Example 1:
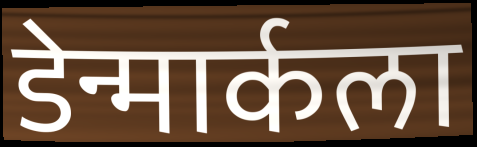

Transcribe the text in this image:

डेन्मार्कला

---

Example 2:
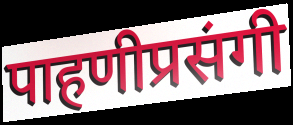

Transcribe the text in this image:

पाहणीप्रसंगी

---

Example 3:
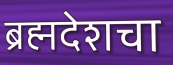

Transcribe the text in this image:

ब्रह्मदेशचा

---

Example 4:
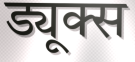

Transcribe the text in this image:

ड्यूक्‍स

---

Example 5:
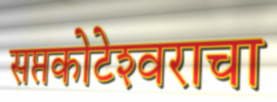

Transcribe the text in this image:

सप्तकोटेश्वराचा